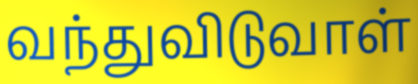
வந்துவிடுவாள்